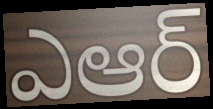
ఎఆర్